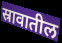
स्रावातील